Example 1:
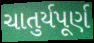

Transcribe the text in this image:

ચાતુર્યપૂર્ણ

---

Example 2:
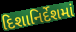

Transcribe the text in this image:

દિશાનિર્દેશમાં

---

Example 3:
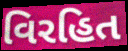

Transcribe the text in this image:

વિરહિત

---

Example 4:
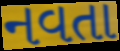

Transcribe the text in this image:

નવતા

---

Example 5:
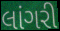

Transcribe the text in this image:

લાંગરી